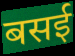
बसई